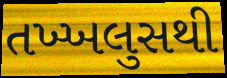
તખ્ખલુસથી